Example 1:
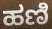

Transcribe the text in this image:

ಹಣಿ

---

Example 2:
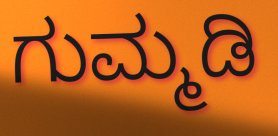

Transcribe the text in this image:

ಗುಮ್ಮಡಿ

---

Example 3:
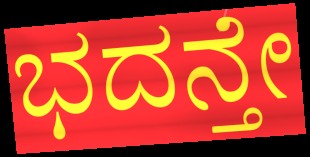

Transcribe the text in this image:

ಭದನ್ತೇ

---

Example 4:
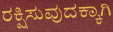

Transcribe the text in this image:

ರಕ್ಷಿಸುವುದಕ್ಕಾಗಿ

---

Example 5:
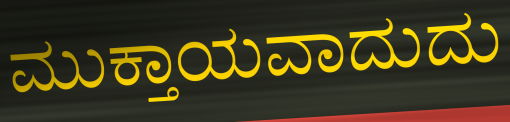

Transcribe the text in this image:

ಮುಕ್ತಾಯವಾದುದು